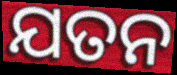
ଯତନ